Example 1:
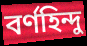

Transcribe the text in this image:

বৰ্ণহিন্দু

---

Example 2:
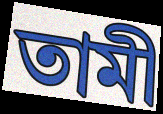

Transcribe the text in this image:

তামী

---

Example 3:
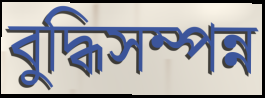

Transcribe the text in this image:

বুদ্ধিসম্পন্ন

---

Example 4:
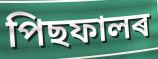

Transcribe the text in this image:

পিছফালৰ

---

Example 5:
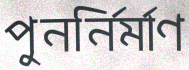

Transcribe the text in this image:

পুনৰ্নিৰ্মাণ